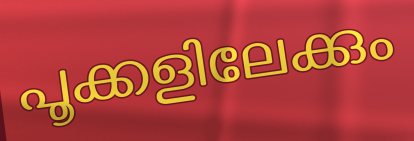
പൂക്കളിലേക്കും